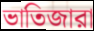
ভাতিজারা